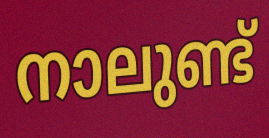
നാലുണ്ട്